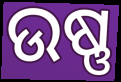
ଉଷ୍ଣ